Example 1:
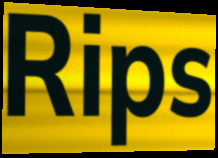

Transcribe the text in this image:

Rips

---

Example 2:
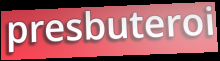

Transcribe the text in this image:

presbuteroi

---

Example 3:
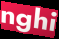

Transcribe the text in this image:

nghi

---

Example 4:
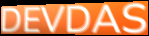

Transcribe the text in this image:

DEVDAS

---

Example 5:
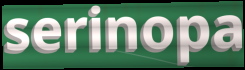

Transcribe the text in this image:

serinopa